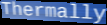
Thermally